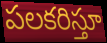
పలకరిస్తూ